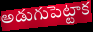
అడుగుపెట్టాక